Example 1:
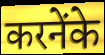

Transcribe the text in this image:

करनेंके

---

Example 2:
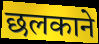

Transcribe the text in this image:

छलकाने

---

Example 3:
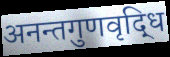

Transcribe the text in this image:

अनन्तगुणवृद्धि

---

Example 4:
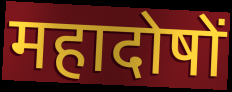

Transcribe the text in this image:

महादोषों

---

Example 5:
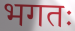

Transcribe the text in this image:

भगतः